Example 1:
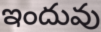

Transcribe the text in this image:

ఇందువు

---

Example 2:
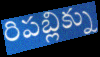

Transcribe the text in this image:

రిపబ్లిక్ను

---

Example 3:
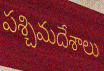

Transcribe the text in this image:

పశ్చిమదేశాలు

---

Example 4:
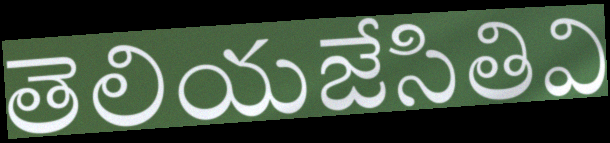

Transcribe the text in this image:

తెలియజేసితివి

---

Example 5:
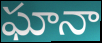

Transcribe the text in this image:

ఘానా